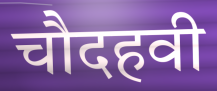
चौदहवी